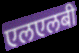
एलएलबी